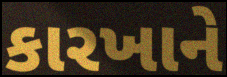
કારખાને